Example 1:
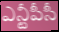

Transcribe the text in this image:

ఎన్టీపీసీ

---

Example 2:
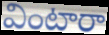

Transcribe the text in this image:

వింటారా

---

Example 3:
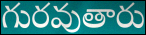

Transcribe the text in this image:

గురవుతారు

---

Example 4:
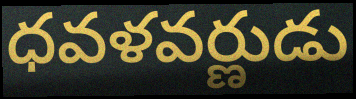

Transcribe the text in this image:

ధవళవర్ణుడు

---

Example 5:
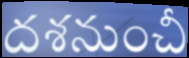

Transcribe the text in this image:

దశనుంచీ